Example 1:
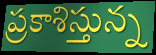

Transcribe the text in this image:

ప్రకాశిస్తున్న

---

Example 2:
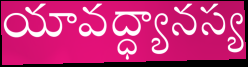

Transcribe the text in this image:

యావద్ధ్యానస్య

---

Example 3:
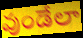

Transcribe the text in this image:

వుండేలా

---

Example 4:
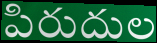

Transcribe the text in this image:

పిరుదుల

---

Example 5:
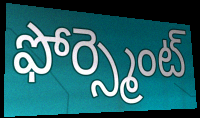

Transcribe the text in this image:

ఫోర్స్మెంట్